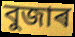
বুজাৰ